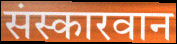
संस्कारवान